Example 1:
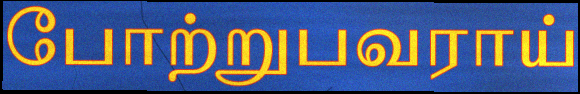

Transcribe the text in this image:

போற்றுபவராய்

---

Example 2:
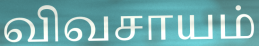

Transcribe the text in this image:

விவசாயம்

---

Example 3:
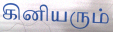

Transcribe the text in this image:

கினியரும்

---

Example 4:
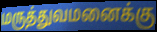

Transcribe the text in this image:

மருத்துவமனைக்கு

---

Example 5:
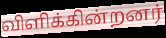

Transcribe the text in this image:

விளிக்கின்றனர்